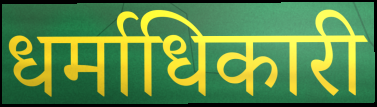
धर्माधिकारी